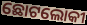
ଛୋଟଲୋକୀ